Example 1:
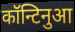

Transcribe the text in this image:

कॉन्टिनुआ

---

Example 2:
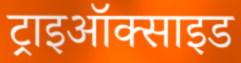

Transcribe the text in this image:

ट्राइऑक्साइड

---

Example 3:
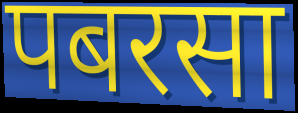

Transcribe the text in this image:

पबरसा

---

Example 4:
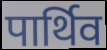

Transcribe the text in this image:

पार्थिव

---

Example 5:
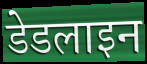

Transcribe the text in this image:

डेडलाइन